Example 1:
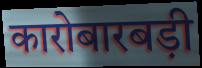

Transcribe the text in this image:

कारोबारबड़ी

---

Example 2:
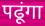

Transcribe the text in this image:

पढूंगा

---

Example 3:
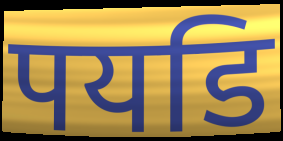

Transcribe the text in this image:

पयडि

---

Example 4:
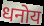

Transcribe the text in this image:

धनोय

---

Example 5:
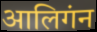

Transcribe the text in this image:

आलिगंन